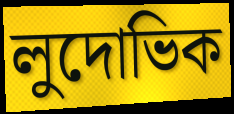
লুদোভিক